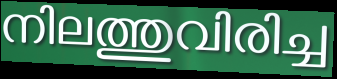
നിലത്തുവിരിച്ച